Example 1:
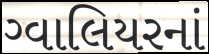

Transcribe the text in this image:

ગ્વાલિયરનાં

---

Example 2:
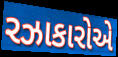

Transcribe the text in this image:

રઝાકારોએ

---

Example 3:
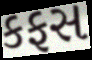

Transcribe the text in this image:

કફસ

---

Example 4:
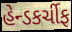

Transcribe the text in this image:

હેન્ડકર્ચીફ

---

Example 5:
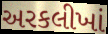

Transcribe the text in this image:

અરકલીખાં